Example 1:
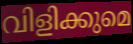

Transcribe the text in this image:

വിളിക്കുമെ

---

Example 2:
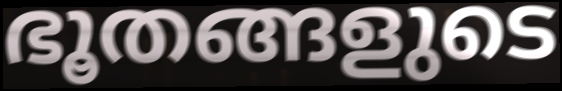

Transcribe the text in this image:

ഭൂതങ്ങളുടെ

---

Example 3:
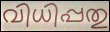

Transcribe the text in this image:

വിധിപ്പതു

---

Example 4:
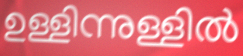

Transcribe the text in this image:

ഉള്ളിന്നുള്ളിൽ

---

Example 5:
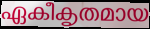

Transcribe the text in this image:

ഏകീകൃതമായ